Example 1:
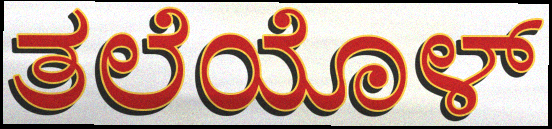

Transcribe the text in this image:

ತಲೆಯೊಳ್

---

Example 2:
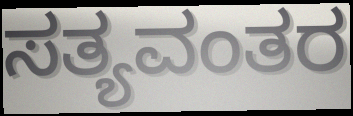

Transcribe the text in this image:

ಸತ್ಯವಂತರ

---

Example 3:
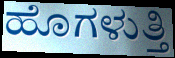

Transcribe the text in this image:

ಹೊಗಳುತ್ತಿ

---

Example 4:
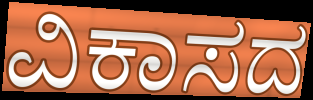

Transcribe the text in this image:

ವಿಕಾಸದ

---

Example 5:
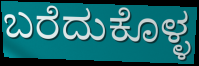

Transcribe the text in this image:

ಬರೆದುಕೊಳ್ಳ